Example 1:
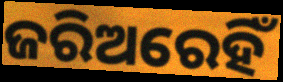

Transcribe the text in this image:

ଜରିଅରେହିଁ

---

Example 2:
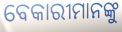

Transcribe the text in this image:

ବେକାରୀମାନଙ୍କୁ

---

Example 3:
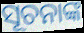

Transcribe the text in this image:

ସୂଚନାଙ୍କ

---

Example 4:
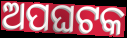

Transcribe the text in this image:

ଅପଘଟକ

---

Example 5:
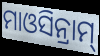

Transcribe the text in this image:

ମାଓସିନ୍ରାମ୍